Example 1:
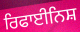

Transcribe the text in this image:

ਰਿਫਾਈਨਿਸ਼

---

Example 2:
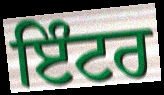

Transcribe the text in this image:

ਇੰਟਰ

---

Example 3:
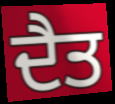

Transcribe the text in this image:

ਦੈਤ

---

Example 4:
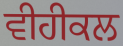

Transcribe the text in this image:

ਵੀਹੀਕਲ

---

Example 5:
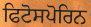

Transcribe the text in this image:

ਫਿਟੋਸਪੋਰਿਨ